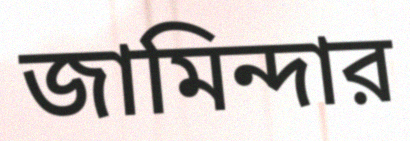
জামিন্দার